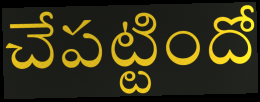
చేపట్టిందో